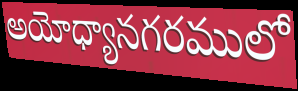
అయోధ్యానగరములో